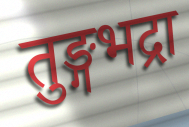
तुङ्गभद्रा